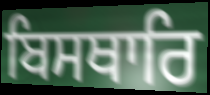
ਬਿਸਥਾਰਿ